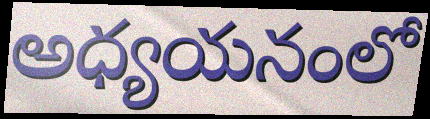
అధ్యయనంలో